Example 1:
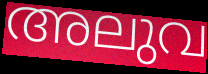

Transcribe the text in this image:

അലുവ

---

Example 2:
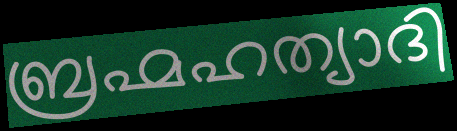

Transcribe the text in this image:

ബ്രഹ്മഹത്യാദി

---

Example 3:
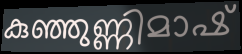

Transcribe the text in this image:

കുഞ്ഞുണ്ണിമാഷ്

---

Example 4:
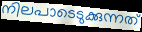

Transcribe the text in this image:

നിലപാടെടുക്കുന്നത്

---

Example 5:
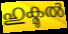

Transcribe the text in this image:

ഹുക്മുൽ